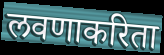
लवणाकरिता